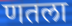
णतला